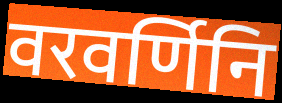
वरवर्णिनि